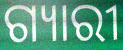
ଗ୍ୟାରୀ